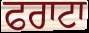
ਫਰਾਟਾ